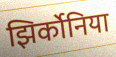
झिर्कोनिया